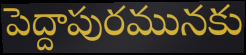
పెద్దాపురమునకు